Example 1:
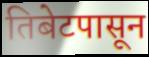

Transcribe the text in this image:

तिबेटपासून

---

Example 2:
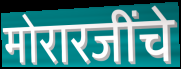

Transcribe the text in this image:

मोरारजींचे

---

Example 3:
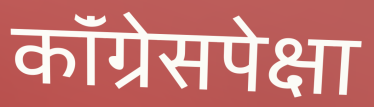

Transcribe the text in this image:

कॉंग्रेसपेक्षा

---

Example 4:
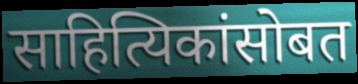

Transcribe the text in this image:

साहित्यिकांसोबत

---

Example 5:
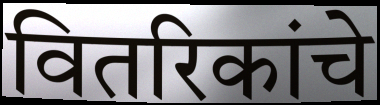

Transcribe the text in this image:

वितरिकांचे